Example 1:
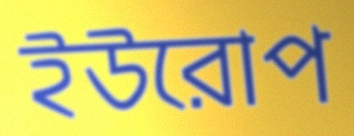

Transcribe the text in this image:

ইউরোপ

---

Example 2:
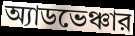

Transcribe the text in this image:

অ্যাডভেঞ্চার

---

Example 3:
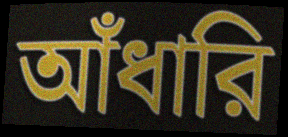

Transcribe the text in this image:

আঁধারি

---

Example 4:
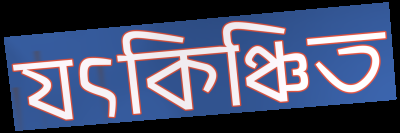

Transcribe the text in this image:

যৎকিঞ্চিত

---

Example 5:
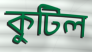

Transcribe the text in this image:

কুটিল